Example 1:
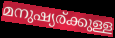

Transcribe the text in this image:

മനുഷ്യര്ക്കുള്ള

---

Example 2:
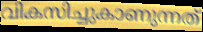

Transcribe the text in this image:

വികസിച്ചുകാണുന്നത്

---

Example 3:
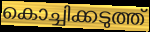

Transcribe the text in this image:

കൊച്ചിക്കടുത്ത്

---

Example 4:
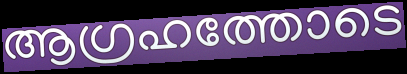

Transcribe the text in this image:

ആഗ്രഹത്തോടെ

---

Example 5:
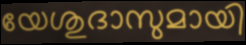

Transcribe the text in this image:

യേശുദാസുമായി